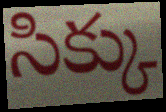
సిక్కు